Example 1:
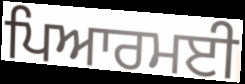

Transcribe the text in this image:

ਪਿਆਰਮਈ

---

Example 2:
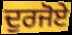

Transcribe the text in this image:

ਦੁਰਜੋਏ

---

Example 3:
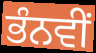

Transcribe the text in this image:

ਭੰਨਵੀਂ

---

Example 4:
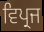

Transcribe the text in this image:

ਵਿਪ੍ਰਜ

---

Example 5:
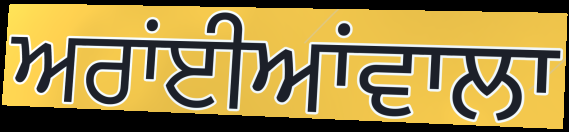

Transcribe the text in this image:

ਅਰਾਂਈਆਂਵਾਲਾ